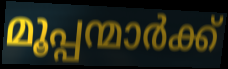
മൂപ്പന്മാർക്ക്